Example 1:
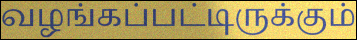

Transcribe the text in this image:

வழங்கப்பட்டிருக்கும்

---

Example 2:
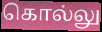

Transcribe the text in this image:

கொல்லு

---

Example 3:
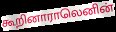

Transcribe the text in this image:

கூறினாராலெனின்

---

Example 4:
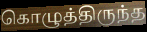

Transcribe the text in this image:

கொழுத்திருந்த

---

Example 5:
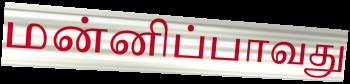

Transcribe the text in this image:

மன்னிப்பாவது